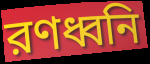
রণধ্বনি